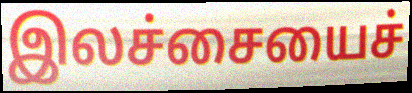
இலச்சையைச்